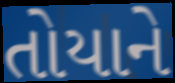
તોયાને